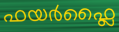
ഫയർഫ്ലൈ